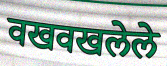
वखवखलेले